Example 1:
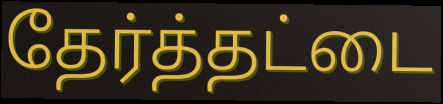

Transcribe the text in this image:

தேர்த்தட்டை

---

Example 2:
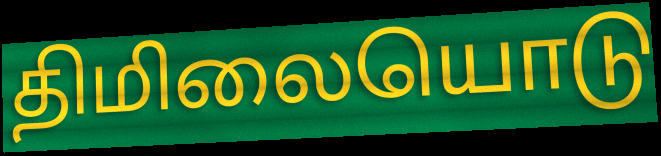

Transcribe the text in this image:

திமிலையொடு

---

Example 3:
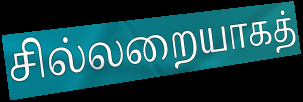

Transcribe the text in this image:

சில்லறையாகத்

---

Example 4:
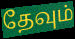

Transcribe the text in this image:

தேவும்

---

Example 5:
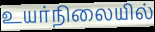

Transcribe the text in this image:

உயர்நிலையில்